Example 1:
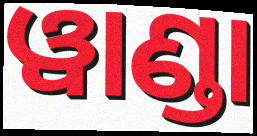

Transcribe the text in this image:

ୱାଣ୍ଡା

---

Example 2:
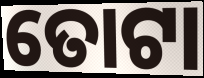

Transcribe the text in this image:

ତୋଟା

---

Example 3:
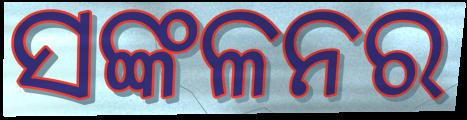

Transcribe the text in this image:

ସଙ୍କଳନର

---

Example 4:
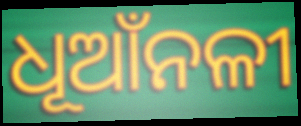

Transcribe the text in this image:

ଧୂଆଁନଳୀ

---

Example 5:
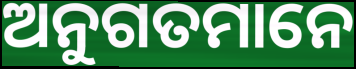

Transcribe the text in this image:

ଅନୁଗତମାନେ